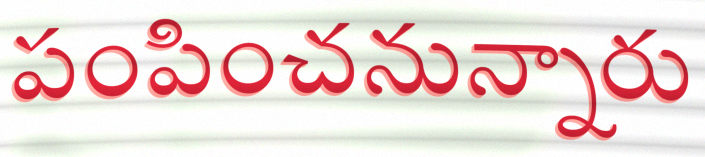
పంపించనున్నారు